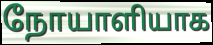
நோயாளியாக